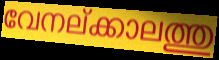
വേനല്ക്കാലത്തു